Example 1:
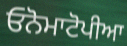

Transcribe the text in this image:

ਓਨੋਮਾਟੋਪੀਆ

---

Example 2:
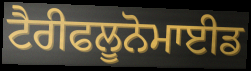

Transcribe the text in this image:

ਟੈਰੀਫਲੂਨੋਮਾਈਡ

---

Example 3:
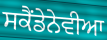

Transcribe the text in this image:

ਸਕੈਂਡੇਨੇਵੀਆ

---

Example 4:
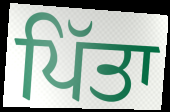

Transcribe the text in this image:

ਪਿੱਤਾ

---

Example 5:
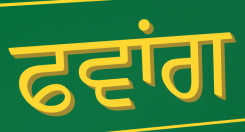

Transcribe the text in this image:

ਫਵਾਂਗ